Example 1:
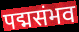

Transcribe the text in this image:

पद्मसंभव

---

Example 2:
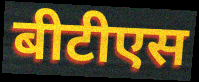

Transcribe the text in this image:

बीटीएस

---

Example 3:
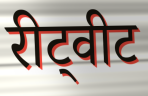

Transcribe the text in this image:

रीट्वीट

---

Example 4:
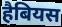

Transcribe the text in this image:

हैबियस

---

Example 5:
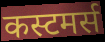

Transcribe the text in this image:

कस्टमर्स